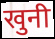
खुनी